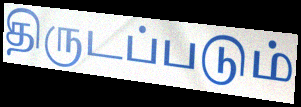
திருடப்படும்